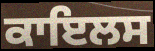
ਕਾਇਲਸ